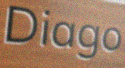
Diago